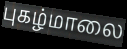
புகழ்மாலை